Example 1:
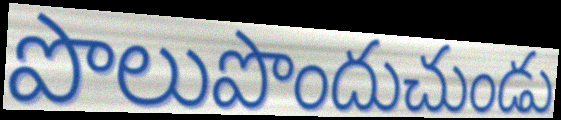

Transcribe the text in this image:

పొలుపొందుచుండు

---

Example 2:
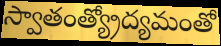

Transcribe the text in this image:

స్వాతంత్య్రోద్యమంతో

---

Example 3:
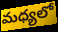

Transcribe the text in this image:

మధ్యలో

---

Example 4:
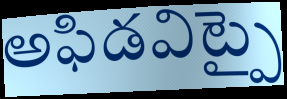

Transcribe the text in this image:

అఫిడవిట్పై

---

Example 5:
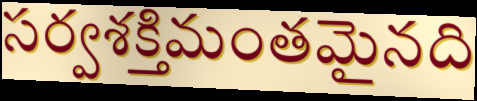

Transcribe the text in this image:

సర్వశక్తిమంతమైనది